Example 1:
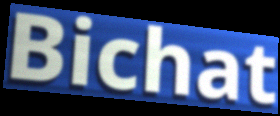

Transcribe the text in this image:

Bichat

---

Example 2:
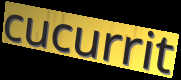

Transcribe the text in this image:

cucurrit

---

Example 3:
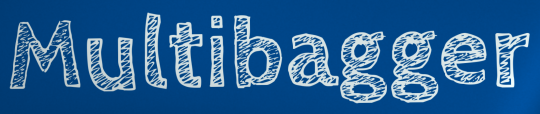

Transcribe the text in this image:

Multibagger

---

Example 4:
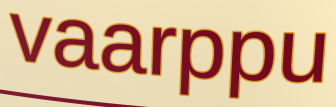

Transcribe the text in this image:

vaarppu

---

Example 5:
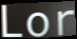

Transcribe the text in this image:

Lor